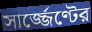
সার্জ্জেণ্টের